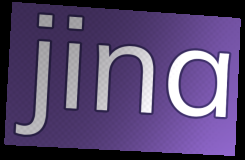
jina